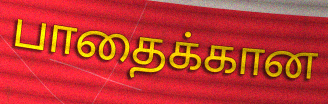
பாதைக்கான